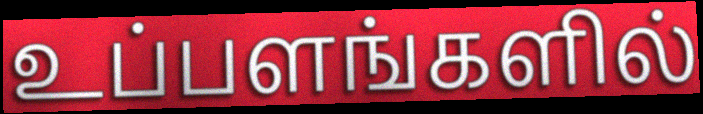
உப்பளங்களில்